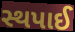
સ્થપાઈ